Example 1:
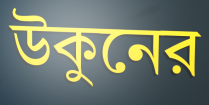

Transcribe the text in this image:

উকুনের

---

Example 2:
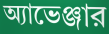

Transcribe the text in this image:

অ্যাভেঞ্জার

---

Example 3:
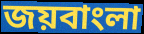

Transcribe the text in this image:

জয়বাংলা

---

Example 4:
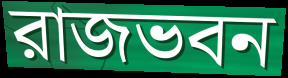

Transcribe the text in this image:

রাজভবন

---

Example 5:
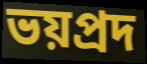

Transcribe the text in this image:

ভয়প্রদ